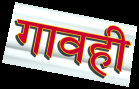
गावही